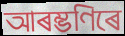
আৰম্ভণিৰে